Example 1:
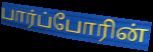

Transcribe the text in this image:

பார்ப்போரின்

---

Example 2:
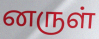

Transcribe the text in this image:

னருள்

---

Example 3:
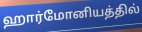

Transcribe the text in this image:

ஹார்மோனியத்தில்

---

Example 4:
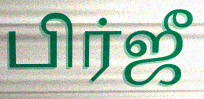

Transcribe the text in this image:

பிர்ஜீ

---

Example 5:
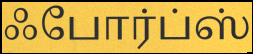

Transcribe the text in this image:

ஃபோர்ப்ஸ்